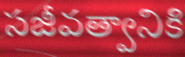
సజీవత్వానికి